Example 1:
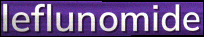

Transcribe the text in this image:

leflunomide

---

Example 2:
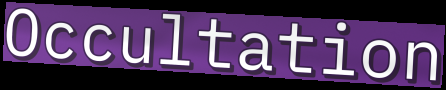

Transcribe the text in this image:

Occultation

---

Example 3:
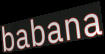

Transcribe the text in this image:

babana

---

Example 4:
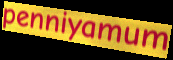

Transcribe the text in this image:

penniyamum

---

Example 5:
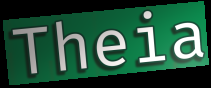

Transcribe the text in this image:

Theia